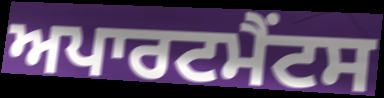
ਅਪਾਰਟਮੈਂਟਸ